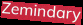
Zemindary